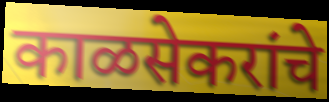
काळसेकरांचे